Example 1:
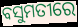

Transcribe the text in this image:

ବସୁମତୀରେ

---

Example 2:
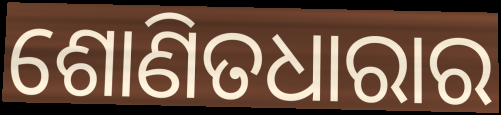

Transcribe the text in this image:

ଶୋଣିତଧାରାର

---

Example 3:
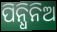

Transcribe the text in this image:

ପିନ୍ଧିନିଅ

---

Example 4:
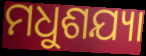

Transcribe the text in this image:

ମଧୁଶଯ୍ୟା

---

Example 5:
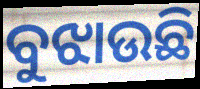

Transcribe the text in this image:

ବୁଝାଉଛି